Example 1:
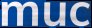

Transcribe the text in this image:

muc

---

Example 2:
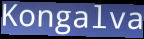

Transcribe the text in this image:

Kongalva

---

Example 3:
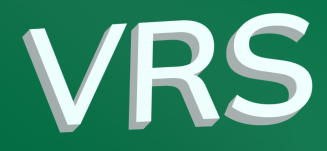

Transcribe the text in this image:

VRS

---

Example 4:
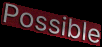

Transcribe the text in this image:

Possible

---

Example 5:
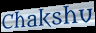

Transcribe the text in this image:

Chakshu